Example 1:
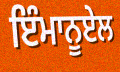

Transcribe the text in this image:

ਇੰਮਾਨੂਏਲ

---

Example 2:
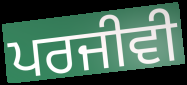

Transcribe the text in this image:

ਪਰਜੀਵੀ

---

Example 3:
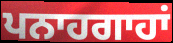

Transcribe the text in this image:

ਪਨਾਹਗਾਹਾਂ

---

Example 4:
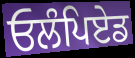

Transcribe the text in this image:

ਓਲੰਪਿਏਡ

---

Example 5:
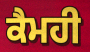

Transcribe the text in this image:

ਕੈਮਹੀ